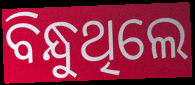
ବିନ୍ଧୁଥିଲେ